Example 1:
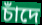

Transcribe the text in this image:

চাঁদে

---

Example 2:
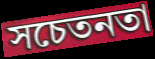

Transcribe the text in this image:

সচেতনতা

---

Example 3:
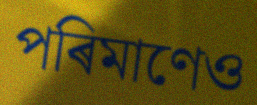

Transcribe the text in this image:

পৰিমাণেও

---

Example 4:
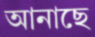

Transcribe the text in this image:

আনাছে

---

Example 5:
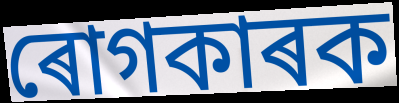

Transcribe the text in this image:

ৰোগকাৰক